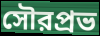
সৌরপ্রভ